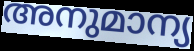
അനുമാന്യ